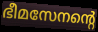
ഭീമസേനന്റെ